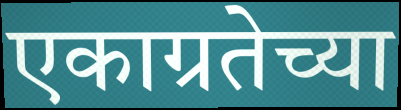
एकाग्रतेच्या